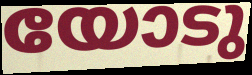
യോടു